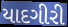
યાદગીરી